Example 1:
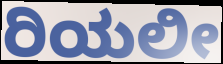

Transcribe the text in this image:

ರಿಯಲೀ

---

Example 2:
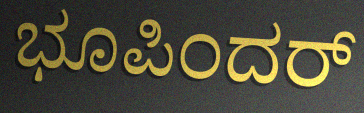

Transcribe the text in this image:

ಭೂಪಿಂದರ್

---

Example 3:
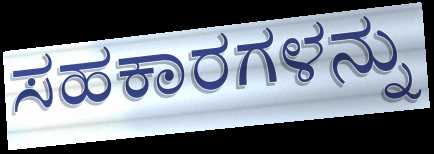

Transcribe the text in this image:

ಸಹಕಾರಗಳನ್ನು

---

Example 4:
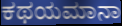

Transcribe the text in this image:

ಕಥಯಮಾನಾ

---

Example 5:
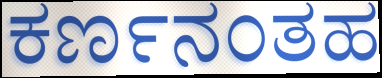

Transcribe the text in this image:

ಕರ್ಣನಂತಹ